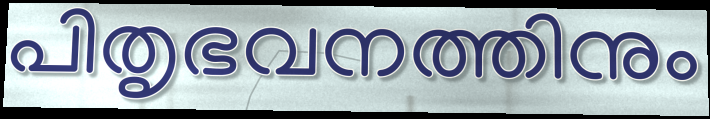
പിതൃഭവനത്തിനും